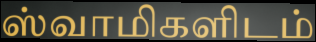
ஸ்வாமிகளிடம்